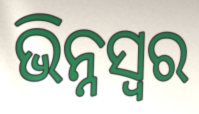
ଭିନ୍ନସ୍ବର